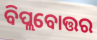
ବିପ୍ଲବୋତ୍ତର